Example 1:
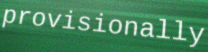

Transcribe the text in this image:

provisionally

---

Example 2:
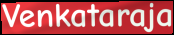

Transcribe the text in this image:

Venkataraja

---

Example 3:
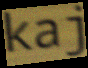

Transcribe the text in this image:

kaj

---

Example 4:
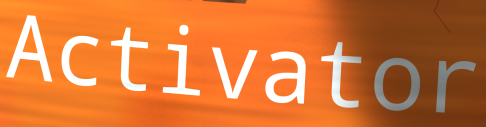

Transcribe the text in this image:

Activator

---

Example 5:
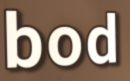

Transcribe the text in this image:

bod